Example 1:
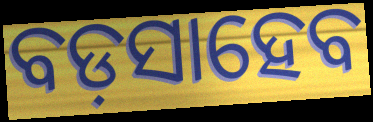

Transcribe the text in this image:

ବଡ଼ସାହେବ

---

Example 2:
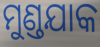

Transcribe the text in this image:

ମୁଣ୍ଡଯାକ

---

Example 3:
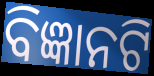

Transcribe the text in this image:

ବିଜ୍ଞାନଟି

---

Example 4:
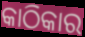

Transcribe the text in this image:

କାଠିକାର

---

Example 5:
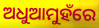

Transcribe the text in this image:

ଅଧୁଆମୁହଁରେ